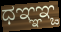
ಧಞ್ಞಞ್ಚ